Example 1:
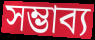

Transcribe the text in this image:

সম্ভাব্য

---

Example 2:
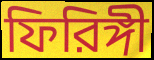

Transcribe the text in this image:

ফিরিঙ্গী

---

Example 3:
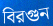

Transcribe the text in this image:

বিরগুন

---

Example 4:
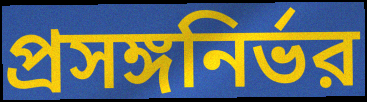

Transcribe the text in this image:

প্রসঙ্গনির্ভর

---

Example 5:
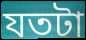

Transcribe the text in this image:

যতটা